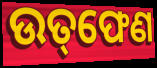
ଉତ୍‌ଫେଣ